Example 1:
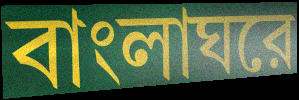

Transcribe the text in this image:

বাংলাঘরে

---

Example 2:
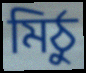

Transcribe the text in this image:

মিঠু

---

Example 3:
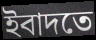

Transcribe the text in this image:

ইবাদতে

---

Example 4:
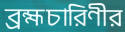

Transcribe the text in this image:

ব্রহ্মচারিণীর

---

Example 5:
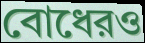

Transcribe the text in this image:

বোধেরও